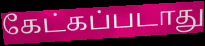
கேட்கப்படாது